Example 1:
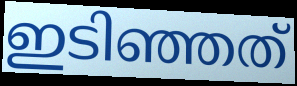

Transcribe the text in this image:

ഇടിഞ്ഞത്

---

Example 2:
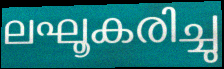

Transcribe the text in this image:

ലഘൂകരിച്ചു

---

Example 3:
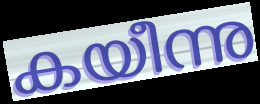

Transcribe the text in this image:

കയീന്നു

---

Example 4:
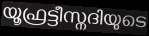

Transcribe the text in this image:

യൂഫ്രട്ടീസ്നദിയുടെ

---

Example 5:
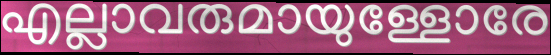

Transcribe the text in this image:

എല്ലാവരുമായുള്ളോരേ